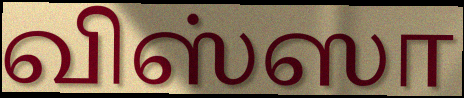
விஸ்ஸா